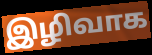
இழிவாக